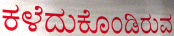
ಕಳೆದುಕೊಂಡಿರುವ